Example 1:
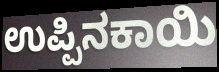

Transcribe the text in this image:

ಉಪ್ಪಿನಕಾಯಿ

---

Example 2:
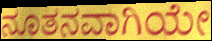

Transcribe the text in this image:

ನೂತನವಾಗಿಯೇ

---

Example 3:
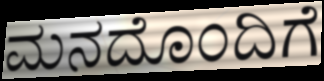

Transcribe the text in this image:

ಮನದೊಂದಿಗೆ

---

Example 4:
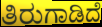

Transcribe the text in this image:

ತಿರುಗಾಡಿದೆ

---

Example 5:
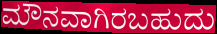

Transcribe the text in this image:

ಮೌನವಾಗಿರಬಹುದು